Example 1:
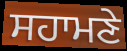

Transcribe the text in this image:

ਸਹਾਮਣੇ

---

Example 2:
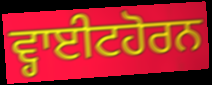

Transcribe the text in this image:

ਵ੍ਹਾਈਟਹੋਰਨ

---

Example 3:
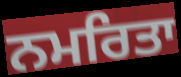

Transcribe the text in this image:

ਨਮਰਿਤਾ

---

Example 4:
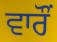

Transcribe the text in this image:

ਵਾਰੌਂ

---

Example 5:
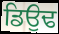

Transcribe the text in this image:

ਡਿਉਢ